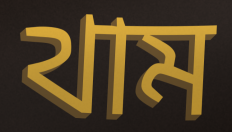
থাম